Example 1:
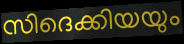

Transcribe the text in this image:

സിദെക്കിയയും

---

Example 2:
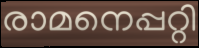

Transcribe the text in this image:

രാമനെപ്പറ്റി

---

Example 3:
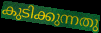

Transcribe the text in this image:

കുടിക്കുന്നതു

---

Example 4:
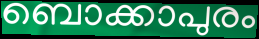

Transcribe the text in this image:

ബൊക്കാപുരം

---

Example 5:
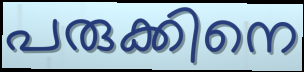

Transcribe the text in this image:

പരുക്കിനെ